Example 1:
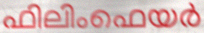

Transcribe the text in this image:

ഫിലിംഫെയർ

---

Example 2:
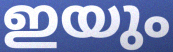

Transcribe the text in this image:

ഇയും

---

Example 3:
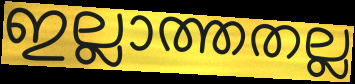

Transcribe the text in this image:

ഇല്ലാത്തതല്ല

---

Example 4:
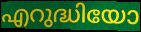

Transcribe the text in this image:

എറുദ്ധിയോ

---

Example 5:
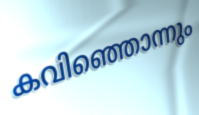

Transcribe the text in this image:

കവിഞ്ഞൊന്നും